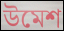
উমেশ